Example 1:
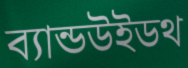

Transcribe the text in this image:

ব্যান্ডউইডথ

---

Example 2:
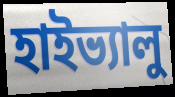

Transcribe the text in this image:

হাইভ্যালু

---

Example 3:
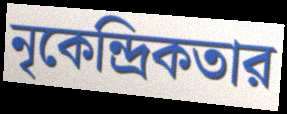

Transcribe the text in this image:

নৃকেন্দ্রিকতার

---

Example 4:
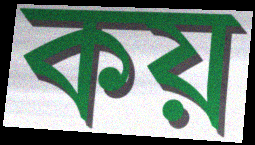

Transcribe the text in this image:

কয়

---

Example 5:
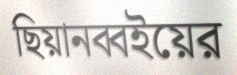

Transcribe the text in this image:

ছিয়ানব্বইয়ের